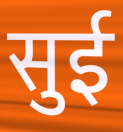
सुई